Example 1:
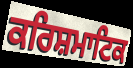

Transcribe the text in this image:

ਕਰਿਸ਼ਮਾਟਿਕ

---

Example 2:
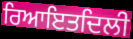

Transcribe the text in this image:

ਰਿਆਇਤਦਿਲੀ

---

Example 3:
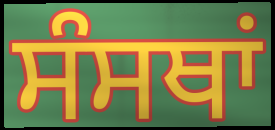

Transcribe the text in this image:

ਸੰਸਥਾਂ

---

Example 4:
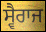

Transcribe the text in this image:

ਸ੍ਵੈਰਾਜ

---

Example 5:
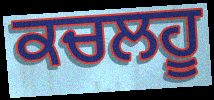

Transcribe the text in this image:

ਕਚਲਹੂ